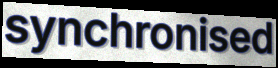
synchronised